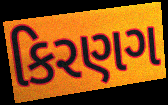
કિરણગ